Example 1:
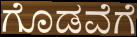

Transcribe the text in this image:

ಗೊಡವೆಗೆ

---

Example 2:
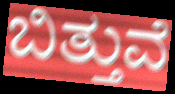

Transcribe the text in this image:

ಬಿತ್ತುವೆ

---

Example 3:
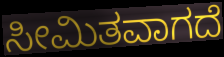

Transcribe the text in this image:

ಸೀಮಿತವಾಗದೆ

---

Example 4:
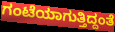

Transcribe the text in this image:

ಗಂಟೆಯಾಗುತ್ತಿದ್ದಂತೆ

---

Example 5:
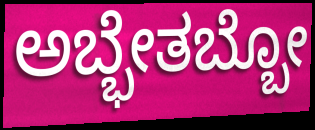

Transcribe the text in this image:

ಅಬ್ಭೇತಬ್ಬೋ